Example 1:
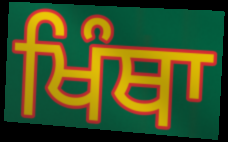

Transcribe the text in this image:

ਖਿੰਥਾ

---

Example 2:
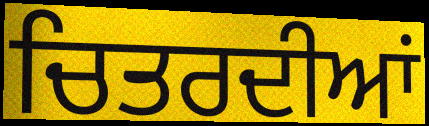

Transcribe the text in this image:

ਚਿਤਰਦੀਆਂ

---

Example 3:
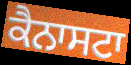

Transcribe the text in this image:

ਕੈਨਾਸਟਾ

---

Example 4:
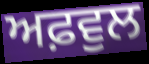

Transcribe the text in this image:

ਅਫ਼ਵੁਲ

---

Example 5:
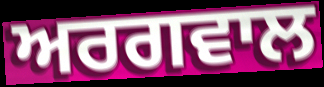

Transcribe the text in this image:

ਅਰਗਵਾਲ